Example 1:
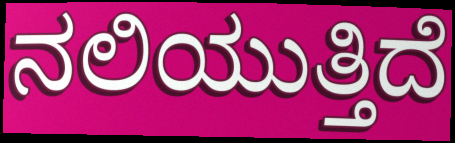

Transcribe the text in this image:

ನಲಿಯುತ್ತಿದೆ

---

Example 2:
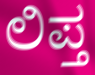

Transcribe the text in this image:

ಲಿಪ್ತ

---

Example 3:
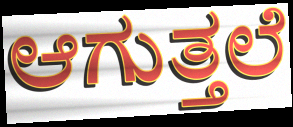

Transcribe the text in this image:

ಆಗುತ್ತಲೆ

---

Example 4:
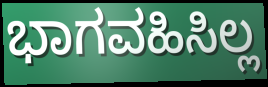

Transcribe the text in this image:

ಭಾಗವಹಿಸಿಲ್ಲ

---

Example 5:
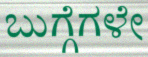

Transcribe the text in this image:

ಬುಗ್ಗೆಗಳೇ